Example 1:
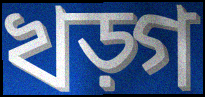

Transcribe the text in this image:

খড়্গ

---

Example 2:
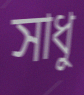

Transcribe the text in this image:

সাধু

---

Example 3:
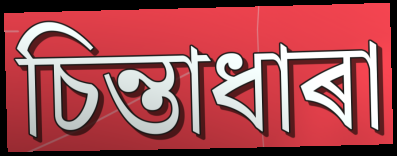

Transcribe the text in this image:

চিন্তাধাৰা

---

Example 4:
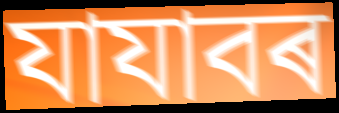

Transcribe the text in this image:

যাযাবৰ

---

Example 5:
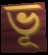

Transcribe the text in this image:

ভূ